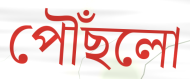
পৌঁছলো